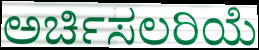
ಅರ್ಚಿಸಲರಿಯೆ